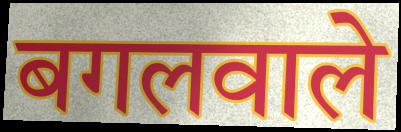
बगलवाले